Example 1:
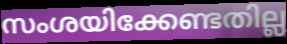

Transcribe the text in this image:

സംശയിക്കേണ്ടതില്ല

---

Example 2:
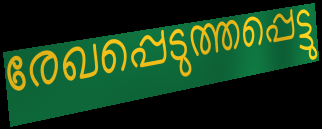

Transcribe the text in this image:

രേഖപ്പെടുത്തപ്പെട്ടു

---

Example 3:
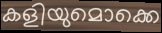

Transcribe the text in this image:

കളിയുമൊക്കെ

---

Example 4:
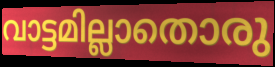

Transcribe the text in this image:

വാട്ടമില്ലാതൊരു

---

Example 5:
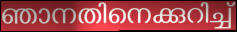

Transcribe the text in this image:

ഞാനതിനെക്കുറിച്ച്